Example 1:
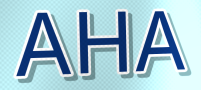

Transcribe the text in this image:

AHA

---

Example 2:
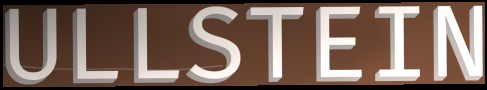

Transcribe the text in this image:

ULLSTEIN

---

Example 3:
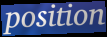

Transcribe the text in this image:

position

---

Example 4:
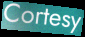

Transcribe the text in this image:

Cortesy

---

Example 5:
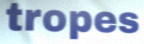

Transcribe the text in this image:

tropes